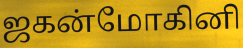
ஜகன்மோகினி